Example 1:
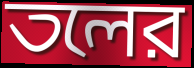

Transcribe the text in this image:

তলের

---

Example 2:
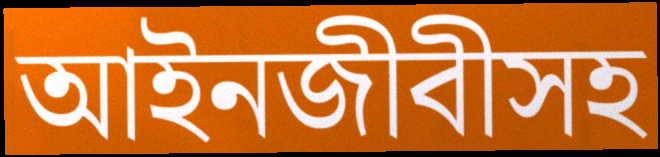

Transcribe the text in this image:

আইনজীবীসহ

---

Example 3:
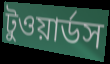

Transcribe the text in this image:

টুওয়ার্ডস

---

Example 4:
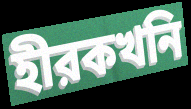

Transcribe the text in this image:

হীরকখনি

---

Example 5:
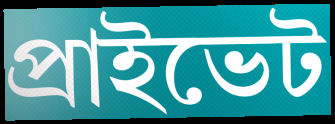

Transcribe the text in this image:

প্রাইভেট